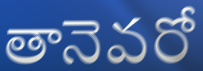
తానెవరో